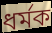
ধৰ্মক